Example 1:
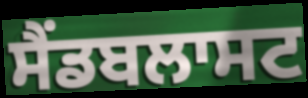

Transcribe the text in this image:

ਸੈਂਡਬਲਾਸਟ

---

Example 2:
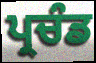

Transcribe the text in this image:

ਪ੍ਰਚੰਡ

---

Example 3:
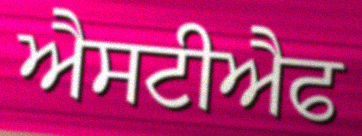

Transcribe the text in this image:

ਐਸਟੀਐਫ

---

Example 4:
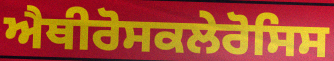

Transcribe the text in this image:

ਐਥੀਰੋਸਕਲੇਰੋਸਿਸ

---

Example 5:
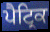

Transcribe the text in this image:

ਪੈਟ੍ਰਿਕ